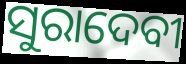
ସୁରାଦେବୀ